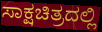
ಸಾಕ್ಷಚಿತ್ರದಲ್ಲಿ